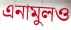
এনামুলও